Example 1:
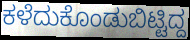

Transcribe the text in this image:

ಕಳೆದುಕೊಂಡುಬಿಟ್ಟಿದ್ದ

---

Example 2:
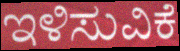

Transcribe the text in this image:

ಇಳಿಸುವಿಕೆ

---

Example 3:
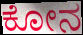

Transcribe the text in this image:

ಕೋನ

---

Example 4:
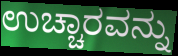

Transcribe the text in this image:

ಉಚ್ಚಾರವನ್ನು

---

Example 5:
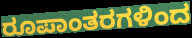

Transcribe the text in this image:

ರೂಪಾಂತರಗಳಿಂದ